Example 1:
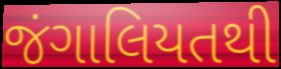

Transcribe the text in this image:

જંગાલિયતથી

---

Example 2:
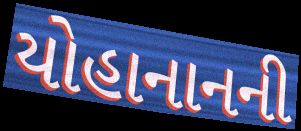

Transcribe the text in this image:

યોહાનાનની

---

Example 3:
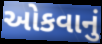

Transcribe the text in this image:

ઓકવાનું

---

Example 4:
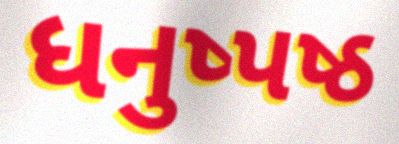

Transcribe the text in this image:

ધનુષ્પષ્ઠ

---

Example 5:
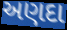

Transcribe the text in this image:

અણદા